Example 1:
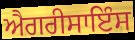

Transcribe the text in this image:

ਐਗਰੀਸਾਇੰਸ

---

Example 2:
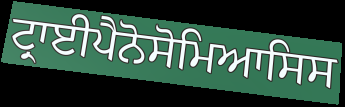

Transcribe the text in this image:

ਟ੍ਰਾਈਪੈਨੋਸੋਮਿਆਸਿਸ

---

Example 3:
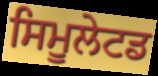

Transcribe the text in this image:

ਸਿਮੂਲੇਟਡ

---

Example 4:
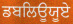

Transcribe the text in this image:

ਡਬਲਿਊਯੂਏ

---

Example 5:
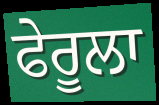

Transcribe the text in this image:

ਫੇਰੂਲਾ